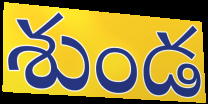
శుండ